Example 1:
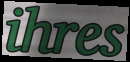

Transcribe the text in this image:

ihres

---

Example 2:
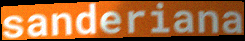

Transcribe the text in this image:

sanderiana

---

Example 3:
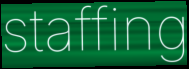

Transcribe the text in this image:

staffing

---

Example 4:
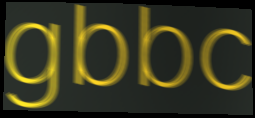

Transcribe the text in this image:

gbbc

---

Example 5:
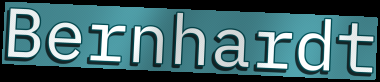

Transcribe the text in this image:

Bernhardt